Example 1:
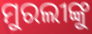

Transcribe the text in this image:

ମୁରଲୀଙ୍କୁ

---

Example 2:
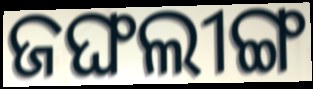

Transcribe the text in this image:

ଜଙ୍ଘଲୀଙ୍ଗ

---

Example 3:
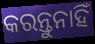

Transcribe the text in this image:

କରନ୍ତୁନାହିଁ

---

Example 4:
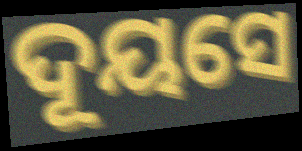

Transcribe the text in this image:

ଦୂୟସେ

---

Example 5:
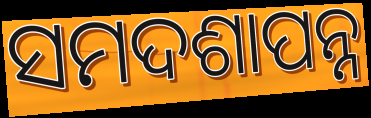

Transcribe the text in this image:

ସମଦଶାପନ୍ନ